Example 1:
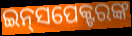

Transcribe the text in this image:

ଇନ୍‍ସପେକ୍ଟରଙ୍କ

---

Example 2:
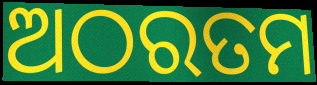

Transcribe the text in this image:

ଅଠରତମ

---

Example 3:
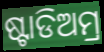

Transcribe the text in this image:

ଷ୍ଟାଡିଅମ୍ର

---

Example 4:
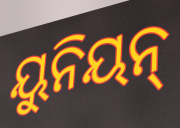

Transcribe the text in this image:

ୟୁନିୟନ୍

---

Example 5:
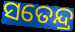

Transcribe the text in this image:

ସତେନ୍ଦ୍ର